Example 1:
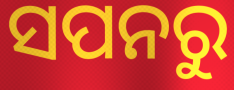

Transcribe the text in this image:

ସପନରୁ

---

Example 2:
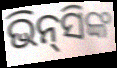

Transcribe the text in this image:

ଭିନ୍‍ସିଙ୍କ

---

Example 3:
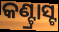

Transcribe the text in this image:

କଣ୍ଟ୍ରାସ୍ଟ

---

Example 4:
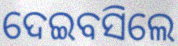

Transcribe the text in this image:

ଦେଇବସିଲେ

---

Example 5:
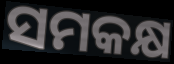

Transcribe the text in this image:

ସମକକ୍ଷ